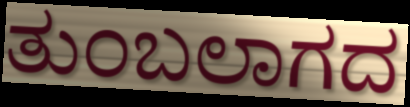
ತುಂಬಲಾಗದ